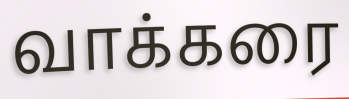
வாக்கரை